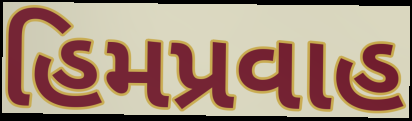
હિમપ્રવાહ